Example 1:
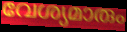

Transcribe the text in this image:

വേശ്യമാരും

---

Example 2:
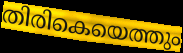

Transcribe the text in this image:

തിരികെയെത്തും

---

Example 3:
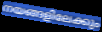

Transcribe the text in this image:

നയങ്ങളിലേക്കും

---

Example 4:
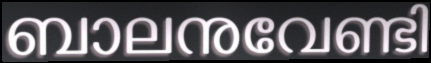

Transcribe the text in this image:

ബാലനുവേണ്ടി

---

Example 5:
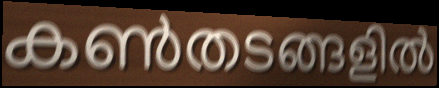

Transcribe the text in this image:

കൺതടങ്ങളിൽ